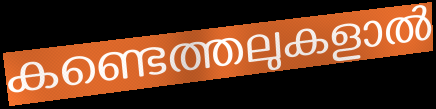
കണ്ടെത്തലുകളാൽ